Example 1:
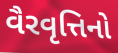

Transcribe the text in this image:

વૈરવૃત્તિનો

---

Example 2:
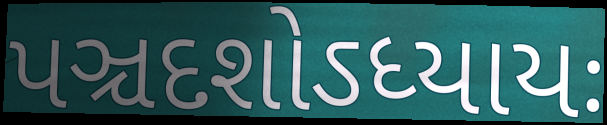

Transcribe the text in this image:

પઞ્ચદશોઽધ્યાયઃ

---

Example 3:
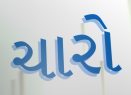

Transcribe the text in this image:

ચારો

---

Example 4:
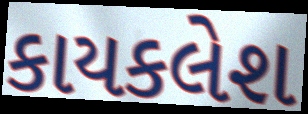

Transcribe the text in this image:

કાયકલેશ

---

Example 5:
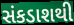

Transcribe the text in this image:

સંકડાશથી